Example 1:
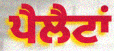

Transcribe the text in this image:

ਪੈਲੈਟਾਂ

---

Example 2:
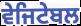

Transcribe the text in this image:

ਵੇਜਿਟੇਬਲ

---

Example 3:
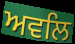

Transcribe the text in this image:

ਅਵਲਿ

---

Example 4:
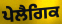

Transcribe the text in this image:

ਪੇਲੈਗਿਕ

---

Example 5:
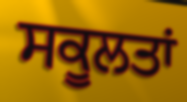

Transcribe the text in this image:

ਸਕੂਲਤਾਂ